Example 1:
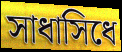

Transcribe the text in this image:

সাধাসিধে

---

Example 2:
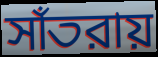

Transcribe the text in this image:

সাঁতরায়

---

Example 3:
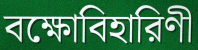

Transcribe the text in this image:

বক্ষোবিহারিণী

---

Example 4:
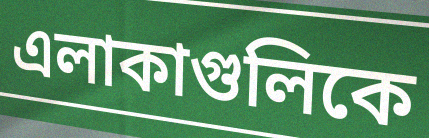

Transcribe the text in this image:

এলাকাগুলিকে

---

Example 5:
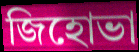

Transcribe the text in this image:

জিহোভা